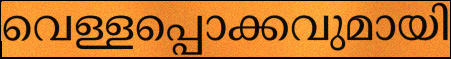
വെള്ളപ്പൊക്കവുമായി